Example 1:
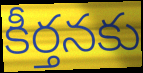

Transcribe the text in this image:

కీర్తనకు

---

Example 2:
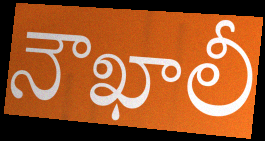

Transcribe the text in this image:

నౌఖాలీ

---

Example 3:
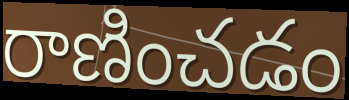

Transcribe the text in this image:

రాణించడం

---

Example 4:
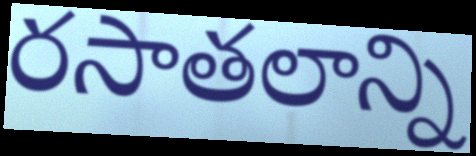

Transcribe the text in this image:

రసాతలాన్ని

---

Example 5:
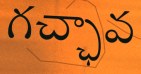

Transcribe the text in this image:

గచ్ఛావ